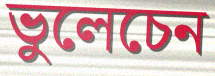
ভুলেচেন